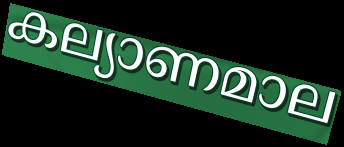
കല്യാണമാല